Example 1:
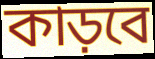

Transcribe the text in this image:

কাড়বে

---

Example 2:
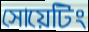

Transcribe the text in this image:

সোয়েটিং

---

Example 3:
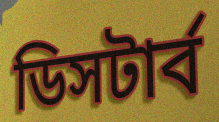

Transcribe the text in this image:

ডিসটার্ব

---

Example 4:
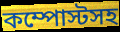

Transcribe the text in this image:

কম্পোস্টসহ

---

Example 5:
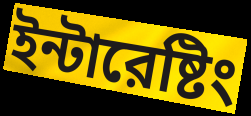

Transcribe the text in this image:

ইন্টারেষ্টিং